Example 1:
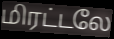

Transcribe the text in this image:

மிரட்டலே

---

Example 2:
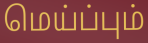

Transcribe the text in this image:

மெய்ப்பும்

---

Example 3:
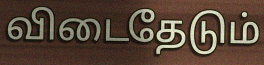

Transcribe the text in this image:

விடைதேடும்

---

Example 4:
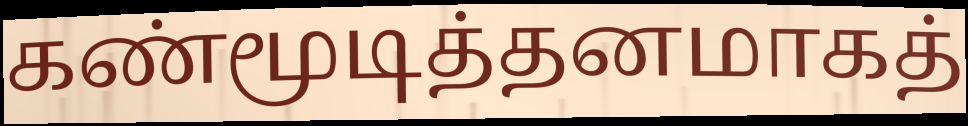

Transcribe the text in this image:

கண்மூடித்தனமாகத்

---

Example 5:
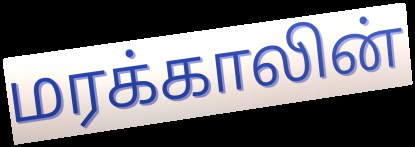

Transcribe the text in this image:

மரக்காலின்